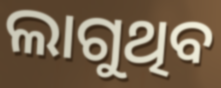
ଲାଗୁଥିବ